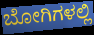
ಬೋಗಿಗಳಲ್ಲಿ